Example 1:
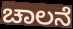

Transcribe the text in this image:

ಚಾಲನೆ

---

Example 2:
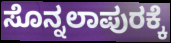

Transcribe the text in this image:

ಸೊನ್ನಲಾಪುರಕ್ಕೆ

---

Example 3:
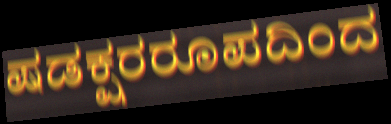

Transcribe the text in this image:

ಷಡಕ್ಷರರೂಪದಿಂದ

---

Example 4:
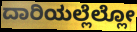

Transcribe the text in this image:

ದಾರಿಯಲ್ಲೆಲ್ಲೋ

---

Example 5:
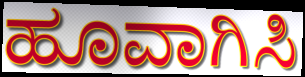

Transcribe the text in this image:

ಹೂವಾಗಿಸಿ